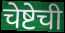
चेष्टेची